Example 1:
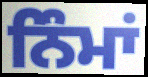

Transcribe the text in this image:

ਨਿੰਮਾਂ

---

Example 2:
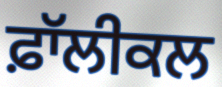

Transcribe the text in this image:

ਫ਼ਾੱਲੀਕਲ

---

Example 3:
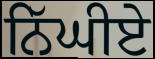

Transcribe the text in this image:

ਨਿੱਘੀਏ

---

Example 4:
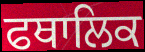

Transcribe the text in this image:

ਫਥਾਲਿਕ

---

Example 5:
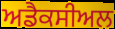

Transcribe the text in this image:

ਅਡੈਕਸੀਅਲ